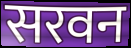
सरवन